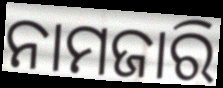
ନାମଜାରି